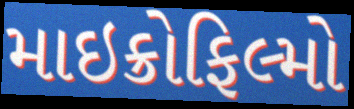
માઇક્રોફિલ્મો